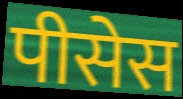
पीसेस